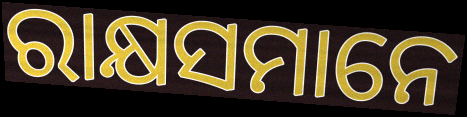
ରାକ୍ଷସମାନେ